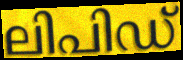
ലിപിഡ്